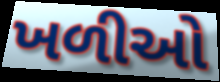
ખળીઓ